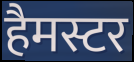
हैमस्टर